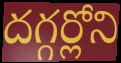
దగ్గర్లోని